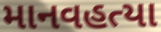
માનવહત્યા